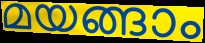
മയങ്ങാം